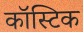
कॉस्टिक